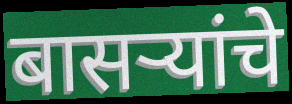
बासऱ्यांचे